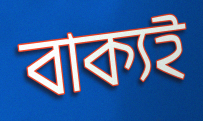
বাক্যই